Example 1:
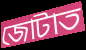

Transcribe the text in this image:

জোটাত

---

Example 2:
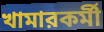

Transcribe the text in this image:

খামারকর্মী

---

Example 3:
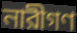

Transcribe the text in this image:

নারীগণ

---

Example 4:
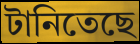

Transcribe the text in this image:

টানিতেছে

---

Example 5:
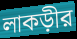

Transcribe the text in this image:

লাকড়ীর